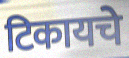
टिकायचे